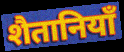
शैतानियाँ